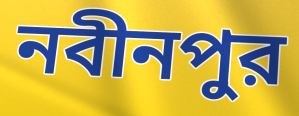
নবীনপুর